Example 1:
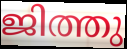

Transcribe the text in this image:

ജിത്തു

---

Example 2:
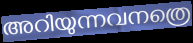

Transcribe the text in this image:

അറിയുന്നവനത്രെ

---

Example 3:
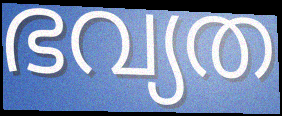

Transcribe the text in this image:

ഭവ്യത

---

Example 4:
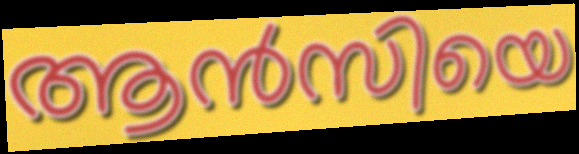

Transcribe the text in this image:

ആൻസിയെ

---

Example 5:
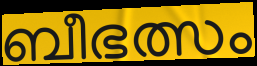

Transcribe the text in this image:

ബീഭത്സം